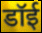
डॉई